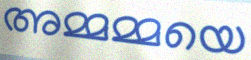
അമ്മമ്മയെ